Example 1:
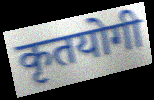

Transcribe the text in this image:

कृतयोगी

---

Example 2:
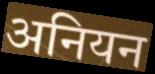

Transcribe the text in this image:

अनियन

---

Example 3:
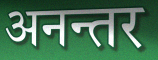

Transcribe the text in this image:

अनन्तर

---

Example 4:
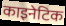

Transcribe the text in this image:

काइनेटिक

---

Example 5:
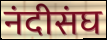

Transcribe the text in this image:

नंदीसंघ